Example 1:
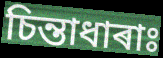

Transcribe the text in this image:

চিন্তাধাৰাঃ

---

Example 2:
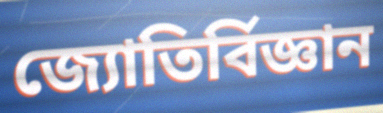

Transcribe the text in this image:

জ্যোতিৰ্বিজ্ঞান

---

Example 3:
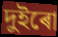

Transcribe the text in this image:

দুইৰো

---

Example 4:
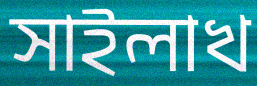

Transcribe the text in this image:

সাইলাখ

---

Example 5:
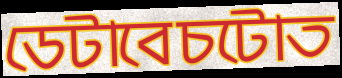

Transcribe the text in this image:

ডেটাবেচটোত